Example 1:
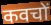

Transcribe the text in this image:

कवचों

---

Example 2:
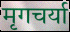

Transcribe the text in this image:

मृगचर्या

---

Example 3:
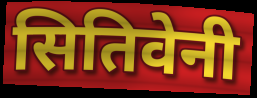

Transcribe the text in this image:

सितिवेनी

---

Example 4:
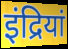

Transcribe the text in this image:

इंद्रियां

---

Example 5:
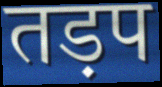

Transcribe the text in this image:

तड़प